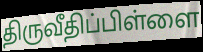
திருவீதிப்பிள்ளை